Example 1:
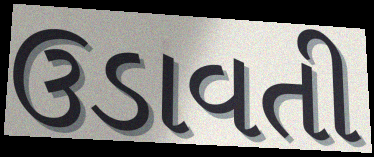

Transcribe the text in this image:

ઉડાવતી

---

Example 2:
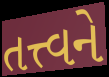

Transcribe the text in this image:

તત્ત્વને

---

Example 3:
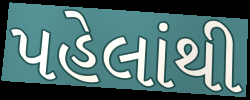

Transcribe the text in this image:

પહેલાંથી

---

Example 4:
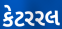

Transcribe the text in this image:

કેટરરલ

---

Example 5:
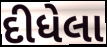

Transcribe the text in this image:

દીધેલા